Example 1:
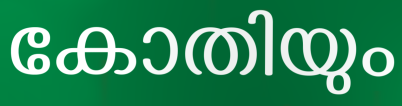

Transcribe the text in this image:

കോതിയും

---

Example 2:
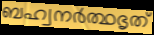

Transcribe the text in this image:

ബഹ്വനർത്ഥഭൃത്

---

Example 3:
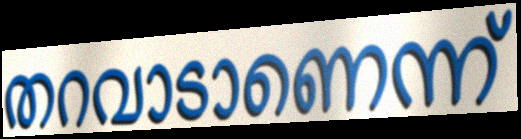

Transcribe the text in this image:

തറവാടാണെന്ന്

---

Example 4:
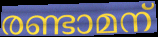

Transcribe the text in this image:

രണ്ടാമന്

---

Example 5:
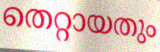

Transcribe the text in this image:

തെറ്റായതും